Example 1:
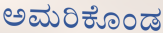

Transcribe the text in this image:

ಅಮರಿಕೊಂಡ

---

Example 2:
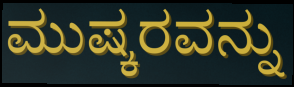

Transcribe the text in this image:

ಮುಷ್ಕರವನ್ನು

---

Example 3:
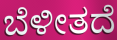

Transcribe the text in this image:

ಬೆಳೀತದೆ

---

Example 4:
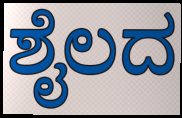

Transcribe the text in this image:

ಶೈಲದ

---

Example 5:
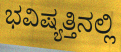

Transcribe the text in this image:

ಭವಿಷ್ಯತ್ತಿನಲ್ಲಿ